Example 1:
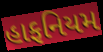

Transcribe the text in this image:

હાફનિયમ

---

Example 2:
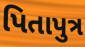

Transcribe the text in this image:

પિતાપુત્ર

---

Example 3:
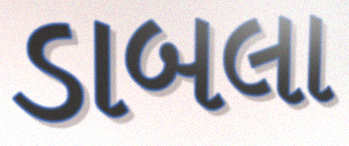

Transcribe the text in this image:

ડાબલા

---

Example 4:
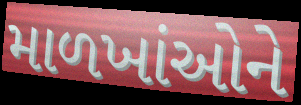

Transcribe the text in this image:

માળખાંઓને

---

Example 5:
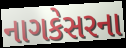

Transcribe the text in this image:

નાગકેસરના